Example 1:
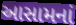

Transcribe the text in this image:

આસામનાં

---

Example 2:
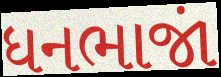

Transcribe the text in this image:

ધનભાજાં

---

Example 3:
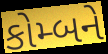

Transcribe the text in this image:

કોમ્બને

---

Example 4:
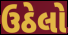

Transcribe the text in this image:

ઉઠેલો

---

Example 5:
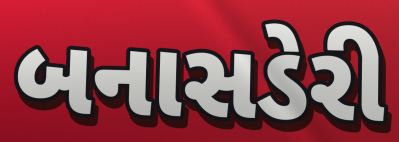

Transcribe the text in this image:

બનાસડેરી